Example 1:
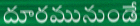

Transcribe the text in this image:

దూరమునుండే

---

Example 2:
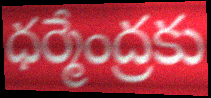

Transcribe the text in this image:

ధర్మేంద్రకు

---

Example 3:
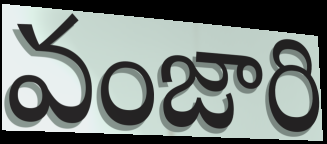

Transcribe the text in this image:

వంజారి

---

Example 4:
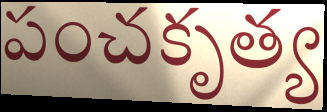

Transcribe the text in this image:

పంచకృత్య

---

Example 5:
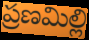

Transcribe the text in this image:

ప్రణమిల్లి